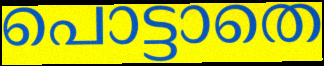
പൊട്ടാതെ